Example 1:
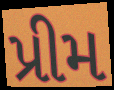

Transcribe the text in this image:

પ્રીમ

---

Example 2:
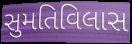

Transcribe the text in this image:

સુમતિવિલાસ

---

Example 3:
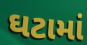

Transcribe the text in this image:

ઘટામાં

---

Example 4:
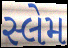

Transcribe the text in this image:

સ્લેમ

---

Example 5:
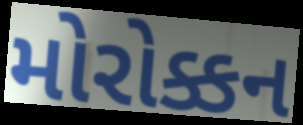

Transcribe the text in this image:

મોરોક્કન